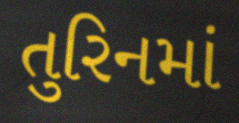
તુરિનમાં